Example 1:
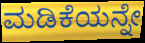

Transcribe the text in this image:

ಮಡಿಕೆಯನ್ನೇ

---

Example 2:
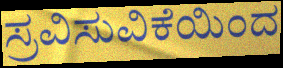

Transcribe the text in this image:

ಸ್ರವಿಸುವಿಕೆಯಿಂದ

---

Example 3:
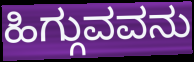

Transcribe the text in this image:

ಹಿಗ್ಗುವವನು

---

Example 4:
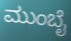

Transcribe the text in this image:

ಮುಂಬೈ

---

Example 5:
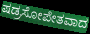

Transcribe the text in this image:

ಷಡ್ರಸೋಪೇತವಾದ